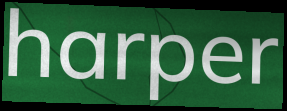
harper